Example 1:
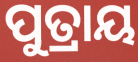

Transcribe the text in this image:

ପୁତ୍ରାୟ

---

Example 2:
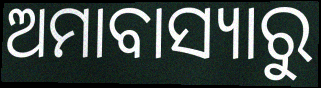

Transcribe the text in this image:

ଅମାବାସ୍ୟାରୁ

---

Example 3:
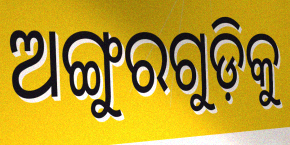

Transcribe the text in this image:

ଅଙ୍ଗୁରଗୁଡ଼ିକୁ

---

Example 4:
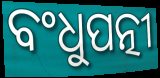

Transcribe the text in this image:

ବଂଧୁପତ୍ନୀ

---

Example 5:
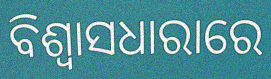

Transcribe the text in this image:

ବିଶ୍ଵାସଧାରାରେ